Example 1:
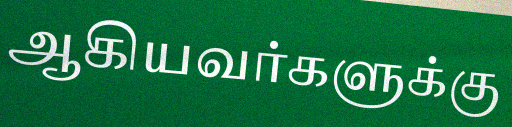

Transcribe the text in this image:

ஆகியவர்களுக்கு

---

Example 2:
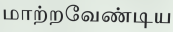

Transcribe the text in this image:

மாற்றவேண்டிய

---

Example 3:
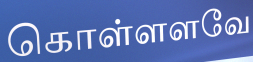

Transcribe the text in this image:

கொள்ளளவே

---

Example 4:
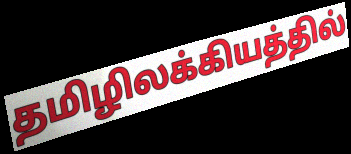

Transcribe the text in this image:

தமிழிலக்கியத்தில்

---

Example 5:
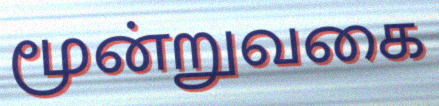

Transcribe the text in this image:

மூன்றுவகை